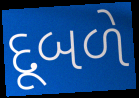
દૂબળે